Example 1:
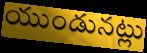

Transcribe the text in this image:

యుండునట్లు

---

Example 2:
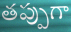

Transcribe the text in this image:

తప్పుగా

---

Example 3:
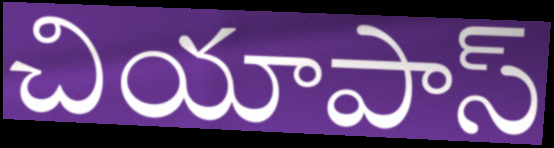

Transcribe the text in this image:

చియాపాస్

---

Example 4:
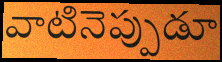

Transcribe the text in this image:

వాటినెప్పుడూ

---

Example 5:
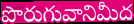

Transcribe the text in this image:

పొరుగువానిమీద